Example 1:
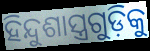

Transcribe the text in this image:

ହିନ୍ଦୁଶାସ୍ତ୍ରଗୁଡ଼ିକୁ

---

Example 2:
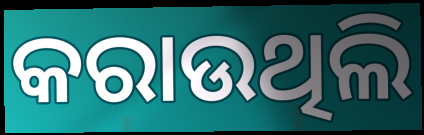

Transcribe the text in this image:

କରାଉଥିଲି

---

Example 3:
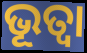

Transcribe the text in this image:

ଭୂତ୍ଵା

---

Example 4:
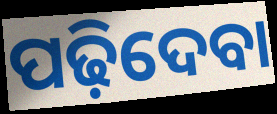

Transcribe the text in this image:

ପଢ଼ିଦେବା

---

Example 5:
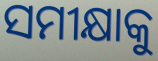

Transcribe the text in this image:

ସମୀକ୍ଷାକୁ